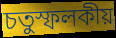
চতুস্ফলকীয়